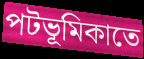
পটভূমিকাতে